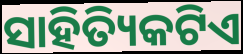
ସାହିତ୍ୟିକଟିଏ